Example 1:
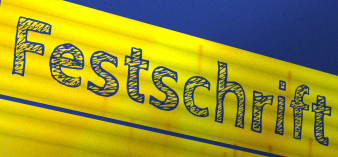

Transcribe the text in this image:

Festschrift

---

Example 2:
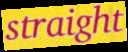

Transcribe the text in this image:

straight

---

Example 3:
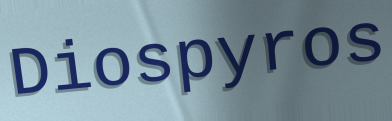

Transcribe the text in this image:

Diospyros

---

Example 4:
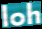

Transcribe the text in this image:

loh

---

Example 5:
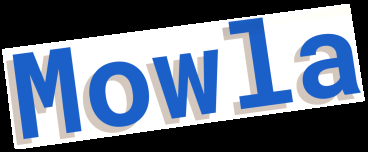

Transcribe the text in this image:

Mowla